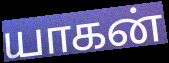
யாகன்